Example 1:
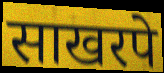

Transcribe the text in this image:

साखरपे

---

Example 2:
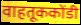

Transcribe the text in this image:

वाहतूककोंडी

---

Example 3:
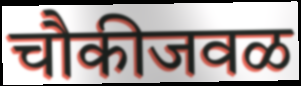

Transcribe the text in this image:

चौकीजवळ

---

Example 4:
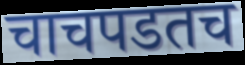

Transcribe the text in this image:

चाचपडतच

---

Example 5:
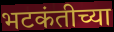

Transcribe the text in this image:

भटकंतीच्या